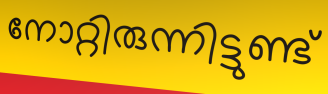
നോറ്റിരുന്നിട്ടുണ്ട്